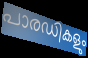
പാരഡികളും